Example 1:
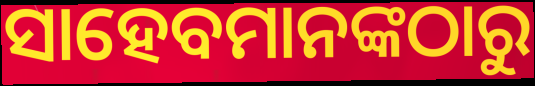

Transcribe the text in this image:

ସାହେବମାନଙ୍କଠାରୁ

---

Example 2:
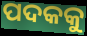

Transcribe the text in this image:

ପଦକକୁ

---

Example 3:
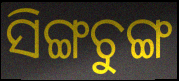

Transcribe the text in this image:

ସିଙ୍ଗଚୁଙ୍ଗ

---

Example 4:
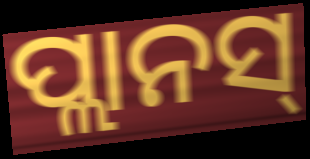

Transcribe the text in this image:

ପ୍ଲାନସ୍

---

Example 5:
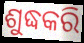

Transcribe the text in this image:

ଶୁଦ୍ଧକରି